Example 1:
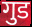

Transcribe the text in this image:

गुड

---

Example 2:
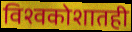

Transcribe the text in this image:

विश्वकोशातही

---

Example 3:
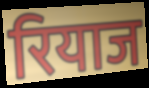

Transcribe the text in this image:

रियाज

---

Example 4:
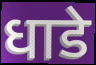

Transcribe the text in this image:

धाडे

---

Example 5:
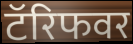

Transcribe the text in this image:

टॅरिफवर